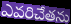
ఎవరిచేతను